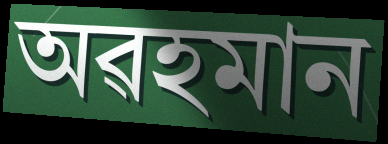
অৱহমান